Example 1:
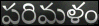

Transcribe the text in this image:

పరిమళం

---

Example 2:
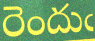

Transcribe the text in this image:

రెందుఁ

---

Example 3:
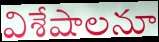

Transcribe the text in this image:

విశేషాలనూ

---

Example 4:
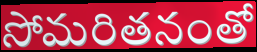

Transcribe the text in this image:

సోమరితనంతో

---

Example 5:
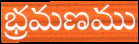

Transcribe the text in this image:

భ్రమణము